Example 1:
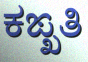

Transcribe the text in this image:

ಕಙ್ಖತಿ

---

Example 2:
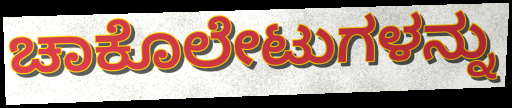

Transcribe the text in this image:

ಚಾಕೊಲೇಟುಗಳನ್ನು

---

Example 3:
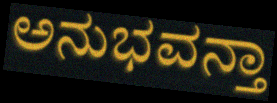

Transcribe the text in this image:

ಅನುಭವನ್ತಾ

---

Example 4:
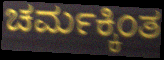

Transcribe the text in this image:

ಚರ್ಮಕ್ಕಿಂತ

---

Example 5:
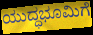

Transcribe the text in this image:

ಯುದ್ಧಭೂಮಿಗೆ